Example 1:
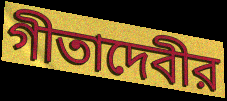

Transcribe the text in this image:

গীতাদেবীর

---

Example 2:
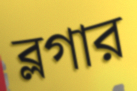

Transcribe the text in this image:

ব্লগার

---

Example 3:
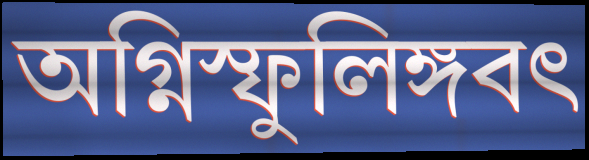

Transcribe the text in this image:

অগ্নিস্ফুলিঙ্গবৎ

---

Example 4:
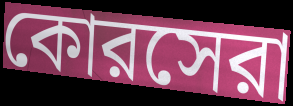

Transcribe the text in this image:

কোরসেরা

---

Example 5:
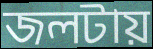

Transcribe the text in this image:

জলটায়